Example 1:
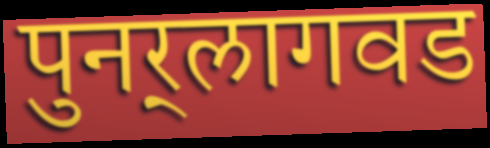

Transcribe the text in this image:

पुनर्लागवड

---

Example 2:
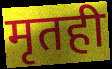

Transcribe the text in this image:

मृतही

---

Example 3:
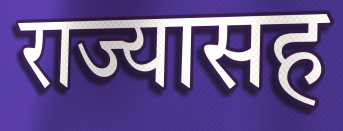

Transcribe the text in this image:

राज्यासह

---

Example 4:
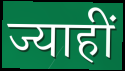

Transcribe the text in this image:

ज्याहीं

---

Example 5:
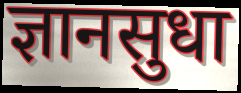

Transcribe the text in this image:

ज्ञानसुधा